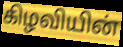
கிழவியின்